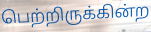
பெற்றிருக்கின்ற